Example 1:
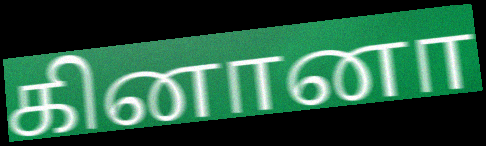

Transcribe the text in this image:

கினானா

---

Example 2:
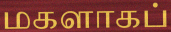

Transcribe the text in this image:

மகளாகப்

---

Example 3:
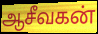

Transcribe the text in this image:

ஆசீவகன்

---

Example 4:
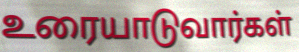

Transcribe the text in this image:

உரையாடுவார்கள்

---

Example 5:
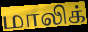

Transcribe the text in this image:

மாலிக்